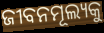
ଜୀବନମୂଲ୍ୟକୁ